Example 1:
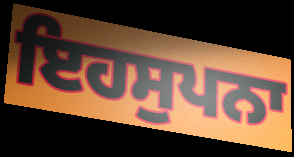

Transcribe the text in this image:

ਇਹਸੁਪਨਾ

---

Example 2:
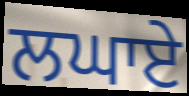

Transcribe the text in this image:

ਲਘਾਏ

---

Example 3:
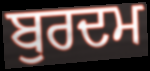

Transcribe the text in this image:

ਬੁਰਦਮ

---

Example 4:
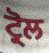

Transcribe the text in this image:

ਟ੍ਰੋਲ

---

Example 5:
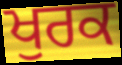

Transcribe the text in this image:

ਖੁਰਕ